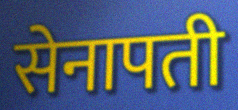
सेनापती